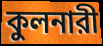
কুলনারী